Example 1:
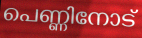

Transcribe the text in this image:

പെണ്ണിനോട്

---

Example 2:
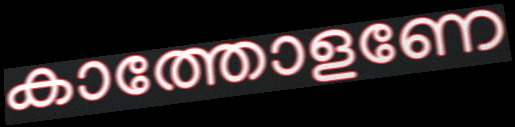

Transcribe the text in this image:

കാത്തോളണേ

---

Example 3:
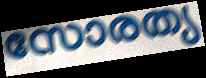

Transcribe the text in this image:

സോരത്യ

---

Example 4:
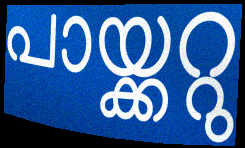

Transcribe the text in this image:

പായ്ക്കറ്റു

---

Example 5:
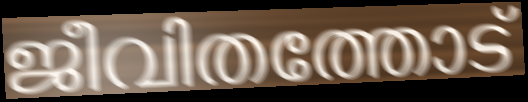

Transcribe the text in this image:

ജീവിതത്തോട്